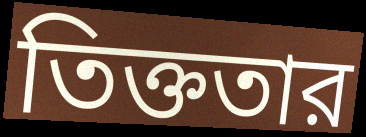
তিক্ততার